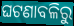
ଘଟଣାବଳିରୁ